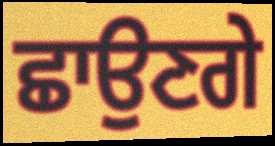
ਛਾਉਣਗੇ